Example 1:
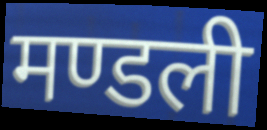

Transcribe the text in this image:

मण्डली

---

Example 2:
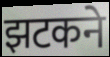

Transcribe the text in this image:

झटकने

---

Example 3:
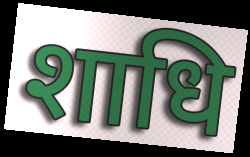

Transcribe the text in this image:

शाधि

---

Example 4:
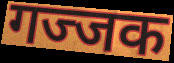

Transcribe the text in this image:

गज्जक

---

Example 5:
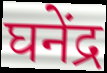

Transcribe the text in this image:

घनेंद्र